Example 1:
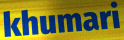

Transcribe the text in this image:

khumari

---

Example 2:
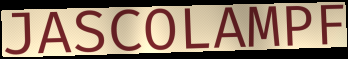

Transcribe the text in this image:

JASCOLAMPF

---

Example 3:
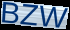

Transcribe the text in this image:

BZW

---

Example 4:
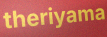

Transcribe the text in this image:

theriyama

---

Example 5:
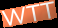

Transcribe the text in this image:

WTT